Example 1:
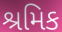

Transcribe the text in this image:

શ્રમિક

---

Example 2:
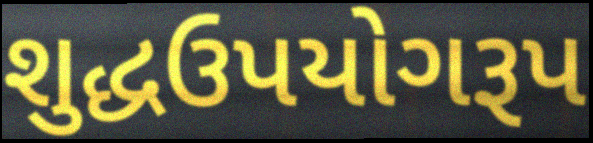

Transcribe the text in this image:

શુદ્ધઉપયોગરૂપ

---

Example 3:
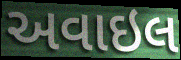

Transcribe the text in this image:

અવાઇલ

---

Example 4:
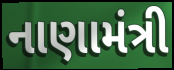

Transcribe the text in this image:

નાણામંત્રી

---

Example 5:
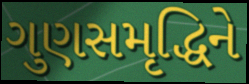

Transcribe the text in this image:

ગુણસમૃદ્ધિને